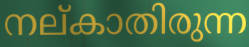
നല്കാതിരുന്ന